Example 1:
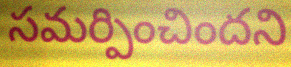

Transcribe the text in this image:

సమర్పించిందని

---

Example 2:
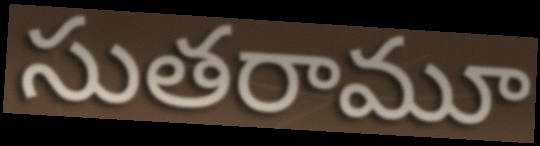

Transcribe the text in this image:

సుతరామూ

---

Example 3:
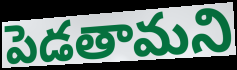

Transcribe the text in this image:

పెడతామని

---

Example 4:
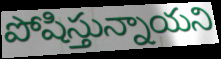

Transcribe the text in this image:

పోషిస్తున్నాయని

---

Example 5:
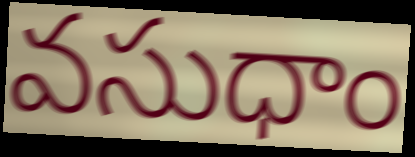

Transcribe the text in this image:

వసుధాం